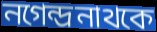
নগেন্দ্রনাথকে